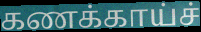
கணக்காய்ச்